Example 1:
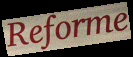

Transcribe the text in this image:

Reforme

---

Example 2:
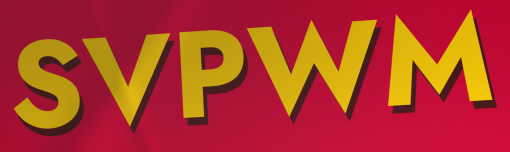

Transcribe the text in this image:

SVPWM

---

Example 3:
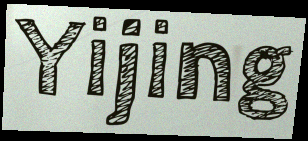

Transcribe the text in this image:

Yijing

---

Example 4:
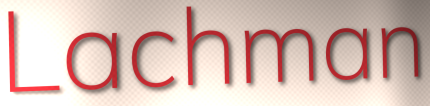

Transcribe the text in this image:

Lachman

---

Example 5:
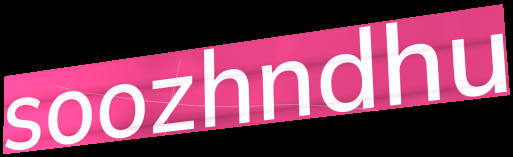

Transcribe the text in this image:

soozhndhu